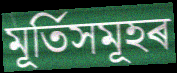
মূৰ্তিসমূহৰ